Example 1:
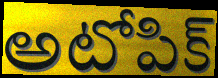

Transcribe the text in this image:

అటోపిక్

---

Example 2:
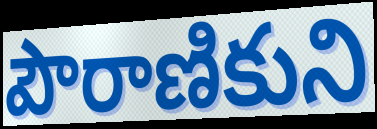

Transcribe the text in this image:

పౌరాణికుని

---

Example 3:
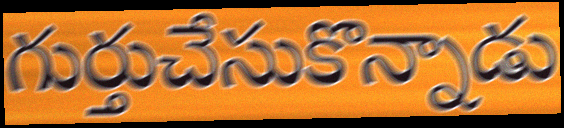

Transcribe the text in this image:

గుర్తుచేసుకొన్నాడు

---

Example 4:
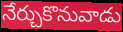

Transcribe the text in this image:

నేర్చుకొనువాడు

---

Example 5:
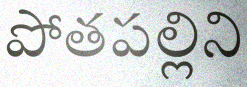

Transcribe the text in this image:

పోతపల్లిని